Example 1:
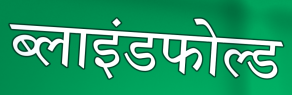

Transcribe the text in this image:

ब्लाइंडफोल्ड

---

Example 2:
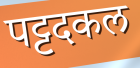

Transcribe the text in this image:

पट्टदकल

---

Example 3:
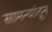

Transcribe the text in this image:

सामन्यांतून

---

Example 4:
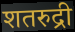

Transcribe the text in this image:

शतरुद्री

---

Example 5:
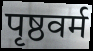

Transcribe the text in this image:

पृष्ठवर्म